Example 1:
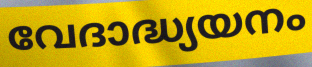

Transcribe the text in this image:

വേദാദ്ധ്യയനം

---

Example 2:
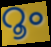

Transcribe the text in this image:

റൂം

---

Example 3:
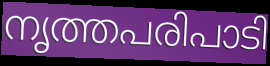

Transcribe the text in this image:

നൃത്തപരിപാടി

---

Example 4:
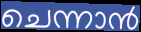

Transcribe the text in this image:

ചെന്നാൻ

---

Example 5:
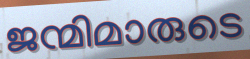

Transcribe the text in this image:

ജന്മിമാരുടെ